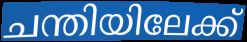
ചന്തിയിലേക്ക്